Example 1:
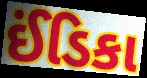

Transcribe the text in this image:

ઈંડિકા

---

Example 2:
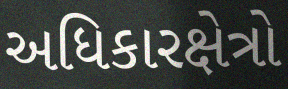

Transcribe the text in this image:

અધિકારક્ષેત્રો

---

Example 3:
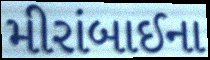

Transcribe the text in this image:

મીરાંબાઈના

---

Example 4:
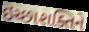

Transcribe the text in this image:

ઇચ્છાશક્તિને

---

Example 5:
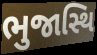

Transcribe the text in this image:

ભુજાસ્થિ